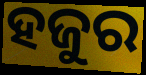
ହଜୁର